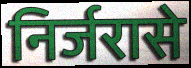
निर्जरासे